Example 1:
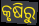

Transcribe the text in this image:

କୃଷିରୁ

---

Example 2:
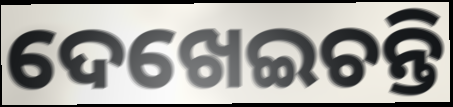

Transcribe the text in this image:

ଦେଖେଇଚନ୍ତି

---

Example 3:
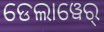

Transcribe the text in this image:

ଡେଲାୱେର୍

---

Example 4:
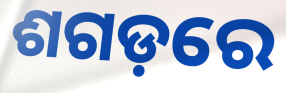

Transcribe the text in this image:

ଶଗଡ଼ରେ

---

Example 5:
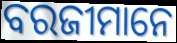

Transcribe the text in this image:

ବରଜୀମାନେ